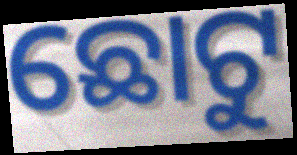
ଛୋଟୁ